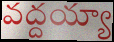
వద్దయ్యా